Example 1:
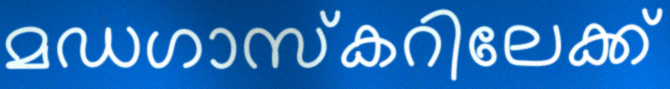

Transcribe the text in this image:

മഡഗാസ്കറിലേക്ക്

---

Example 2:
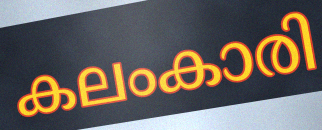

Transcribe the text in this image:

കലംകാരി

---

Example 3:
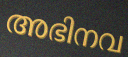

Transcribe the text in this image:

അഭിനവ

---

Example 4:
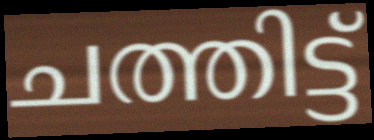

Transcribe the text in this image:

ചത്തിട്ട്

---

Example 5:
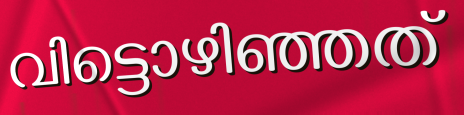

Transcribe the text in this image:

വിട്ടൊഴിഞ്ഞത്